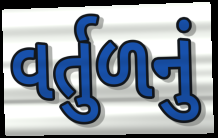
વર્તુળનું